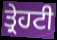
ਤ੍ਰੇਹਟੀ